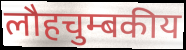
लौहचुम्बकीय